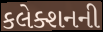
કલેક્શનની